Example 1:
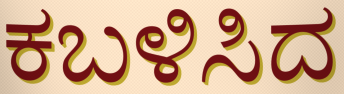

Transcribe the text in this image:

ಕಬಳಿಸಿದ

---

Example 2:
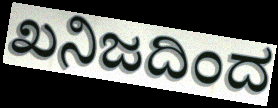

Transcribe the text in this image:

ಖನಿಜದಿಂದ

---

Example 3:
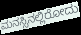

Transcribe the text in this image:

ಮನಸ್ಸಿನಲ್ಲಿರೋದು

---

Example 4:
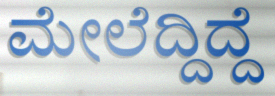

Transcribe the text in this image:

ಮೇಲೆದ್ದಿದ್ದೆ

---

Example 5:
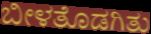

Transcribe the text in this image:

ಬೀಳತೊಡಗಿತು